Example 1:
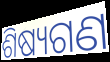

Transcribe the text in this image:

ଶିଷ୍ୟଗଣ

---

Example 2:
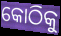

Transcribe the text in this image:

କୋଠିକୁ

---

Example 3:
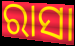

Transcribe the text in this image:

ରାସା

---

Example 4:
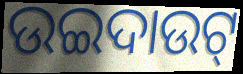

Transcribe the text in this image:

ଉଇଦାଉଟ୍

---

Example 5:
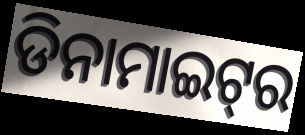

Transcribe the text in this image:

ଡିନାମାଇଟ୍‌ର